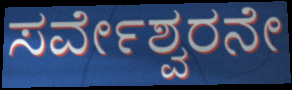
ಸರ್ವೇಶ್ವರನೇ